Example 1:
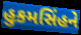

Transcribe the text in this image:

હુકમસિંહને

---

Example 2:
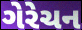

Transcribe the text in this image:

ગેરેચન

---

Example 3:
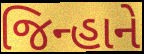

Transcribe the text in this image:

જિન્હાને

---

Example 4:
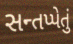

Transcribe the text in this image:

સન્તપ્પેતું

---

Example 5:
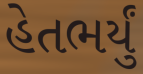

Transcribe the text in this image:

હેતભર્યું